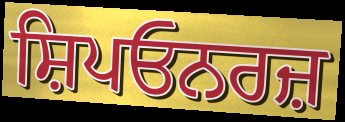
ਸ਼ਿਪਓਨਰਜ਼